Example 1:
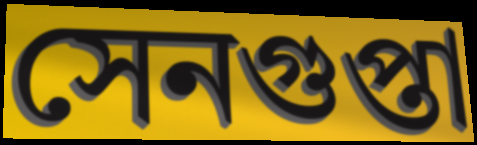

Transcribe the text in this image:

সেনগুপ্তা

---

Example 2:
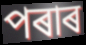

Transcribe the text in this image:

পৰাৰ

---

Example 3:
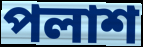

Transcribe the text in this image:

পলাশ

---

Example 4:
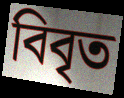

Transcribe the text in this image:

বিবৃত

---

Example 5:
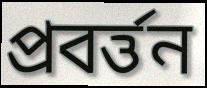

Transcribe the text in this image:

প্ৰবৰ্ত্তন